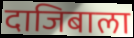
दाजिबाला